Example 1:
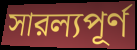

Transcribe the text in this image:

সারল্যপূর্ণ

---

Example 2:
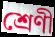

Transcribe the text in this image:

শ্রেণী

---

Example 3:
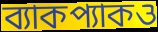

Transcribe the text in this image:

ব্যাকপ্যাকও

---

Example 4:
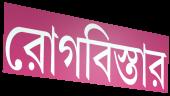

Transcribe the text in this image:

রোগবিস্তার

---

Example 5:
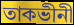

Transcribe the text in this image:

তাকভীনী